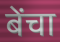
बेंचा